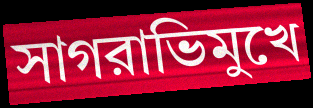
সাগরাভিমুখে